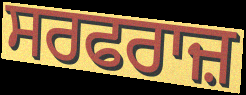
ਸਰਫਰਾਜ਼